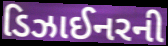
ડિઝાઈનરની